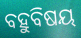
ବହୁବିଷୟ